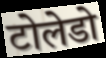
टोलेडो